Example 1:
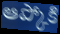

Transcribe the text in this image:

ఆప్కోకి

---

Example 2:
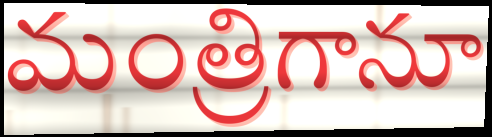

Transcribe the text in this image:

మంత్రిగానూ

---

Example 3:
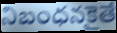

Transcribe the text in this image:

నిబంధనకైతే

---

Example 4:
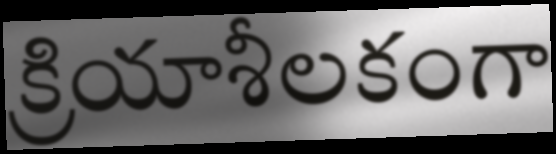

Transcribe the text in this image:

క్రియాశీలకంగా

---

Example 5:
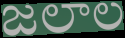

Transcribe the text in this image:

జలాల